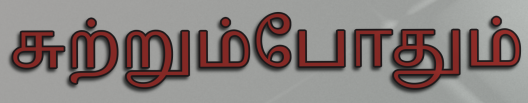
சுற்றும்போதும்